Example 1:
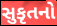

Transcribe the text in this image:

સુકૃતનો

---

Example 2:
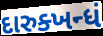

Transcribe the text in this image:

દારુક્ખન્ધં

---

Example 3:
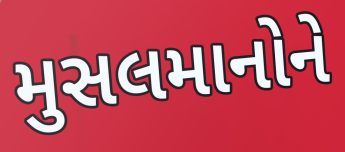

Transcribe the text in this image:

મુસલમાનોને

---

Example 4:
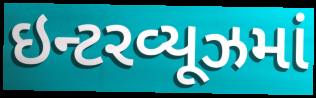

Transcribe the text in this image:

ઇન્ટરવ્યૂઝમાં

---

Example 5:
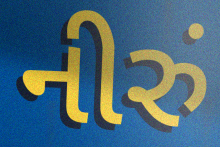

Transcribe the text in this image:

નીરું